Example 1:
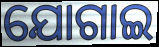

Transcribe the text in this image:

ଯୋଗାଇ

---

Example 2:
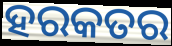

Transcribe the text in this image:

ହରକତର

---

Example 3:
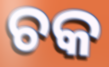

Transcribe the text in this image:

ଚକ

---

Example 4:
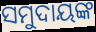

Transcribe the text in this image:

ସମୁଦାୟଙ୍କ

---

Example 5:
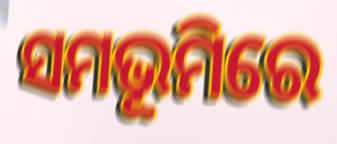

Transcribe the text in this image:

ସମଭୂମିରେ